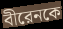
বীরেনকে